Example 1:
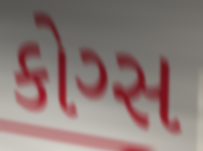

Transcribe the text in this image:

કોગ્સ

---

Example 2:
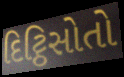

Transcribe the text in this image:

દિટ્ઠિસોતો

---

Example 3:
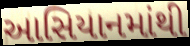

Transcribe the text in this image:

આસિયાનમાંથી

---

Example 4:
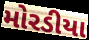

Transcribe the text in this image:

મોરડીયા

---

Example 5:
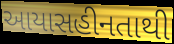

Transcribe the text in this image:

આયાસહીનતાથી